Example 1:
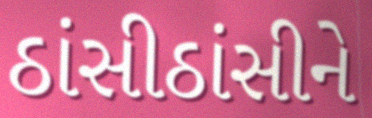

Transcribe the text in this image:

ઠાંસીઠાંસીને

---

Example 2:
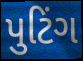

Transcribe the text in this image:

પુટિંગ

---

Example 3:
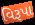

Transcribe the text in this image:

વિરૂપા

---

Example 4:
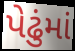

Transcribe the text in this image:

પેઢુંમાં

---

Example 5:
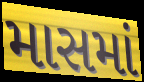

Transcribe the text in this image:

માસમાં